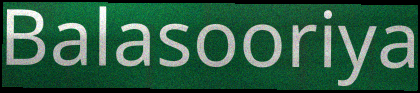
Balasooriya